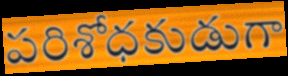
పరిశోధకుడుగా